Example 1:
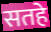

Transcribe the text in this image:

सतहे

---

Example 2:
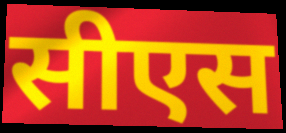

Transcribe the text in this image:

सीएस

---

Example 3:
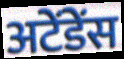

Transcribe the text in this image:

अटेंडेंस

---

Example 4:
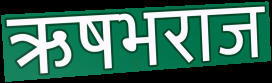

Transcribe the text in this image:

ऋषभराज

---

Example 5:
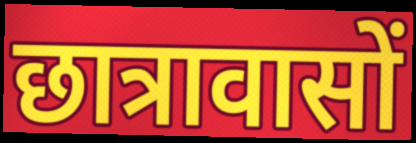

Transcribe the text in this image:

छात्रावासों